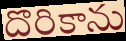
దొరికాను